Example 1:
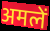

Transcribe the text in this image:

अमलें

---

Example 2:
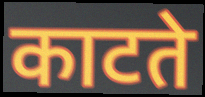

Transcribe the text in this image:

काटते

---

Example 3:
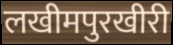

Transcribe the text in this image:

लखीमपुरखीरी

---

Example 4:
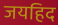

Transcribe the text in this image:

जयहिद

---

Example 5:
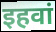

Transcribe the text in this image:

इहवां